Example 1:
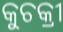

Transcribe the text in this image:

କୁଚକ୍ରୀ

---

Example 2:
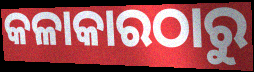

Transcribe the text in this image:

କଳାକାରଠାରୁ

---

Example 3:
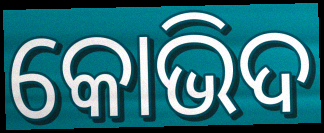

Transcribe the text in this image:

କୋଭିଦ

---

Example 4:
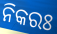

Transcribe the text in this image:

ନିକରଃ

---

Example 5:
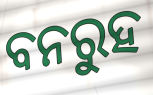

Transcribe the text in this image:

ବନରୁହ